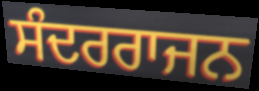
ਸੰਦਰਰਾਜਨ